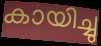
കായിച്ചു